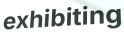
exhibiting